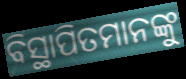
ବିସ୍ଥାପିତମାନଙ୍କୁ